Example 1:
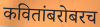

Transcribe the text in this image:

कवितांबरोबरच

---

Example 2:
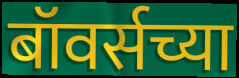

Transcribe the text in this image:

बॉवर्सच्या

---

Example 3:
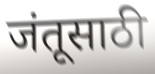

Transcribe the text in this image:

जंतूसाठी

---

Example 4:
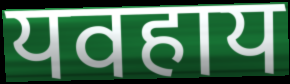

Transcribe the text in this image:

यवहाय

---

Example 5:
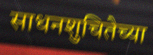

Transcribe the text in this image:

साधनशुचितेच्या